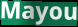
Mayou